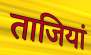
ताजियां